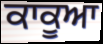
ਕਾਕੂਆ